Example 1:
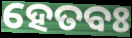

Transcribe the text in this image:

ହେତବଃ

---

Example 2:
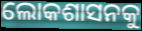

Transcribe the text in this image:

ଲୋକଶାସନକୁ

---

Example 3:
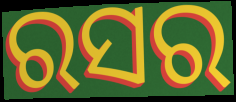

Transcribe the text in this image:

ରସର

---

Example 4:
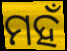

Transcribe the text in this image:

ମହଁ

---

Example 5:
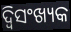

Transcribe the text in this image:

ଦ୍ୱିସଂଖ୍ୟକ